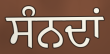
ਸੰਨਦਾਂ